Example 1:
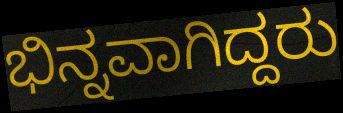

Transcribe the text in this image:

ಭಿನ್ನವಾಗಿದ್ದರು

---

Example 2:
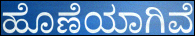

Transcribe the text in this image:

ಹೊಣೆಯಾಗಿವೆ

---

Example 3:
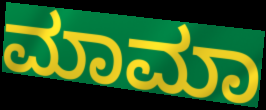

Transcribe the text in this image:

ಮಾಮಾ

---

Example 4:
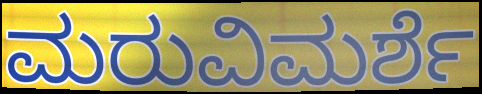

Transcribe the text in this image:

ಮರುವಿಮರ್ಶೆ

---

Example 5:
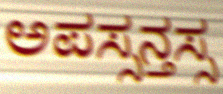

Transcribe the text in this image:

ಅಪಸ್ಸನ್ತಸ್ಸ